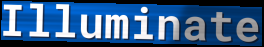
Illuminate